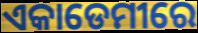
ଏକାଡେମୀରେ